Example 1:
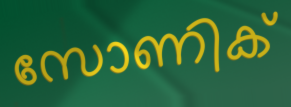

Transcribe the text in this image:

സോണിക്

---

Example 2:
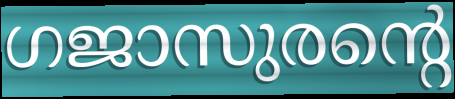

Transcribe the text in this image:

ഗജാസുരന്റെ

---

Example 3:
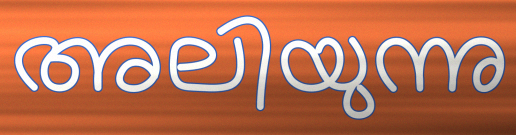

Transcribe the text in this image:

അലിയുന്നു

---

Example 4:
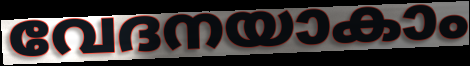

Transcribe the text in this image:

വേദനയാകാം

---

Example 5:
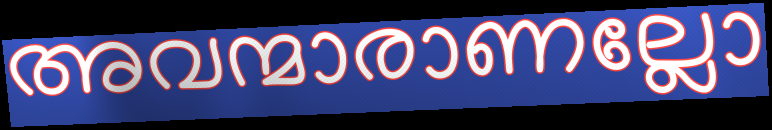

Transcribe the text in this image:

അവന്മാരാണല്ലോ